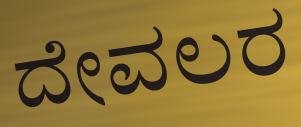
ದೇವಲರ